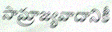
సామ్రాజ్యవాదానికీ